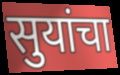
सुयांचा